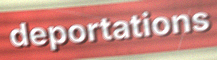
deportations